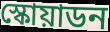
স্কোয়াডন